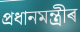
প্ৰধানমন্ত্ৰীৰ